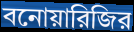
বনোয়ারিজির